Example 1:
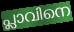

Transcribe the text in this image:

പ്ലാവിനെ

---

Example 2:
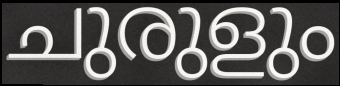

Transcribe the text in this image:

ചുരുളും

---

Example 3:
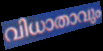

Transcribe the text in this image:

വിധാതാവും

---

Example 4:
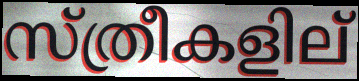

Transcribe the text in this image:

സ്ത്രീകളില്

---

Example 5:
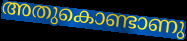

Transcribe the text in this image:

അതുകൊണ്ടാണു